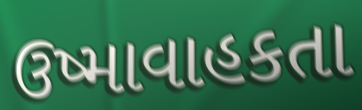
ઉષ્માવાહકતા